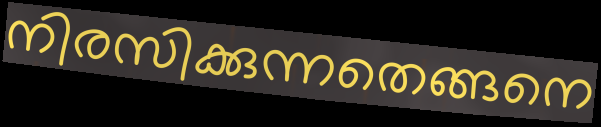
നിരസിക്കുന്നതെങ്ങനെ